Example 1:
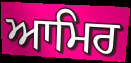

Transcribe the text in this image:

ਆਮਿਰ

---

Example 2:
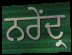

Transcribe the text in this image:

ਨਰੇਂਦ੍ਰ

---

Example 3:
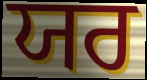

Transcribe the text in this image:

ਯਰ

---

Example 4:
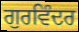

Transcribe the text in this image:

ਗੁਰਵਿੰਦਰ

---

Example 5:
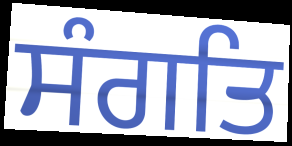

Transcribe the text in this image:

ਸੰਗਤਿ